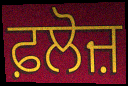
ਫ਼ਲੋਜ਼